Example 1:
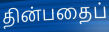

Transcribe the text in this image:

தின்பதைப்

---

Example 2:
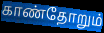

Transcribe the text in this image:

காண்தோறும்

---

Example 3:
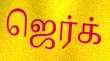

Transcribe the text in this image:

ஜெர்க்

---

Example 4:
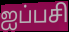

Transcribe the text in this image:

ஐப்பசி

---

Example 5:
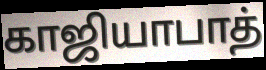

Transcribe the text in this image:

காஜியாபாத்